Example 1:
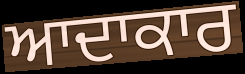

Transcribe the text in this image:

ਆਦਾਕਾਰ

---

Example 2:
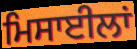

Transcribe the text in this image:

ਮਿਸਾਈਲਾਂ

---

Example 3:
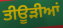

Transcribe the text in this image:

ਤੀਊੜੀਆਂ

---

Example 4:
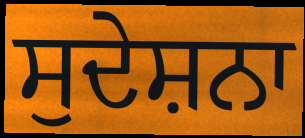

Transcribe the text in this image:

ਸੁਦੇਸ਼ਨਾ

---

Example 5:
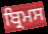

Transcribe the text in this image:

ਬ੍ਰਿਮਸ